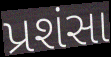
પ્રશંસા